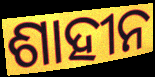
ଶାହୀନ